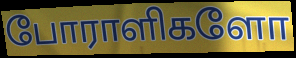
போராளிகளோ